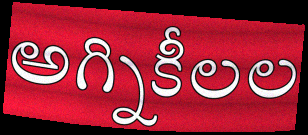
అగ్నికీలల